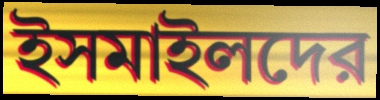
ইসমাইলদের